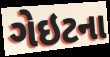
ગેઇટના